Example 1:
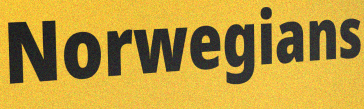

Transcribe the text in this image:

Norwegians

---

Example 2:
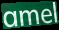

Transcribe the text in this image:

amel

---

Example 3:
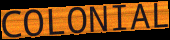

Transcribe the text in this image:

COLONIAL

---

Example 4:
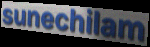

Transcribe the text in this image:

sunechilam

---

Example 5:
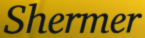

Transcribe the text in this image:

Shermer